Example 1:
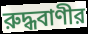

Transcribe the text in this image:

রুদ্ধবাণীর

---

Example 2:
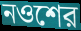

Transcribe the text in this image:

নওশের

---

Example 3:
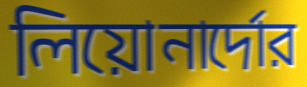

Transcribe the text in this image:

লিয়োনার্দোর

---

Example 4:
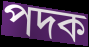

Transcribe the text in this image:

পদক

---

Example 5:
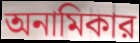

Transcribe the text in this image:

অনামিকার